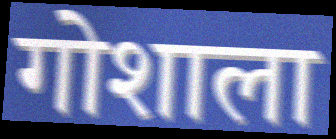
गोशाला